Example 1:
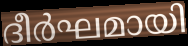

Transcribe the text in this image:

ദീർഘമായി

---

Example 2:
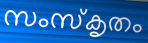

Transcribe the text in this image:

സംസ്കൃതം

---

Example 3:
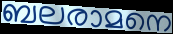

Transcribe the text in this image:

ബലരാമനെ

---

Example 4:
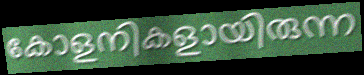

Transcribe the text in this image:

കോളനികളായിരുന്ന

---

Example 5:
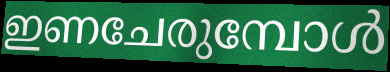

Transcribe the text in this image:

ഇണചേരുമ്പോൾ